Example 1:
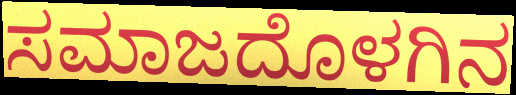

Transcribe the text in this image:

ಸಮಾಜದೊಳಗಿನ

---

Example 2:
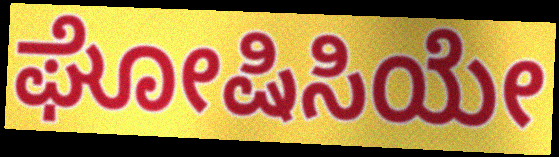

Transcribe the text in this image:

ಘೋಷಿಸಿಯೇ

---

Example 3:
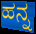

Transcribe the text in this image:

ಹನ್ನ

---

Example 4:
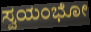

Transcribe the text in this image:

ಸ್ವಯಂಭೋ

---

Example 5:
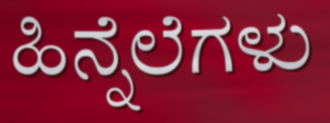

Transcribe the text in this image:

ಹಿನ್ನೆಲೆಗಳು